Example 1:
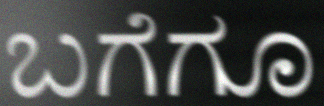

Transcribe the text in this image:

ಬಗೆಗೂ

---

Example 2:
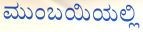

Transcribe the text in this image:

ಮುಂಬಯಿಯಲ್ಲಿ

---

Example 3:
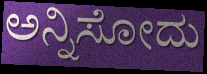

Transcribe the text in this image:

ಅನ್ನಿಸೋದು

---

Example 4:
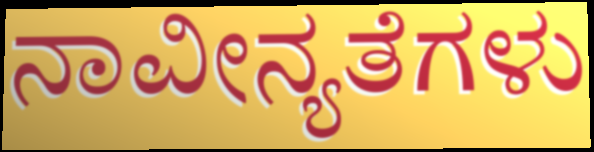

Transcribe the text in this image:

ನಾವೀನ್ಯತೆಗಳು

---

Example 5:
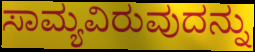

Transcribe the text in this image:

ಸಾಮ್ಯವಿರುವುದನ್ನು